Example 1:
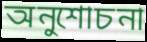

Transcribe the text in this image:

অনুশোচনা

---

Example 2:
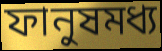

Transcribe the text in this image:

ফানুষমধ্য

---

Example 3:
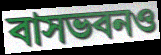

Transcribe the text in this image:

বাসভবনও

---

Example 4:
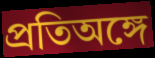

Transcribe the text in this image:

প্রতিঅঙ্গে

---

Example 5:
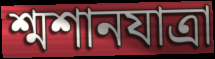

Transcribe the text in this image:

শ্মশানযাত্রা